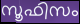
സൂഫിസം